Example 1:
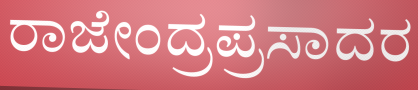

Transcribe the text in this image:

ರಾಜೇಂದ್ರಪ್ರಸಾದರ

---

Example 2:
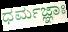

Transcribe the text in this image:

ಧರ್ಮಜ್ಞಾಃ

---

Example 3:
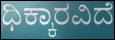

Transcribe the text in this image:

ಧಿಕ್ಕಾರವಿದೆ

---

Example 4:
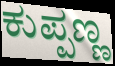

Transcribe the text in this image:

ಕುಪ್ಪಣ್ಣ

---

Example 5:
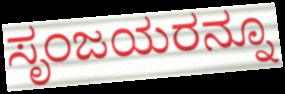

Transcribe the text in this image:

ಸೃಂಜಯರನ್ನೂ